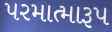
પરમાત્મારૂપ